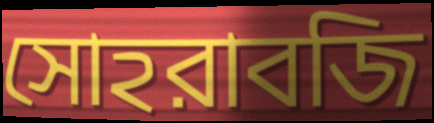
সোহরাবজি